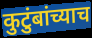
कुटुंबांच्याच